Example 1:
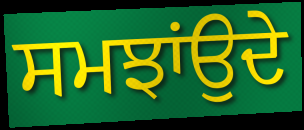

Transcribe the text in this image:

ਸਮਝਾਂਉਦੇ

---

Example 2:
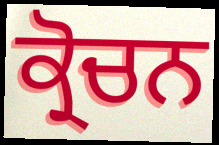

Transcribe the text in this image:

ਕ੍ਰੋਚਨ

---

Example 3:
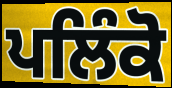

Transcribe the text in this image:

ਪਲਿੰਕੋ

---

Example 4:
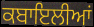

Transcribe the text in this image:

ਕਬਾਇਲੀਆਂ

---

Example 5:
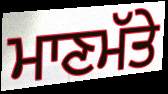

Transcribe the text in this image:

ਮਾਣਮੱਤੇ